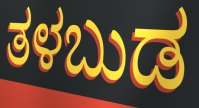
ತಳಬುಡ